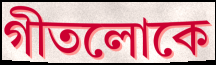
গীতলোকে